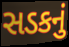
સડકનું